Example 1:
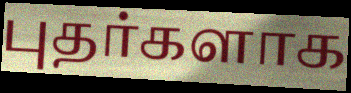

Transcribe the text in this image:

புதர்களாக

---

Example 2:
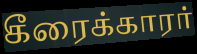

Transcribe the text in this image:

கீரைக்காரர்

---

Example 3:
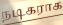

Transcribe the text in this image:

நடிகராக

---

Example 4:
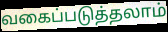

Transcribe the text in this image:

வகைப்படுத்தலாம்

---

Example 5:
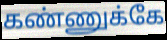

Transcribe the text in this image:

கண்ணுக்கே